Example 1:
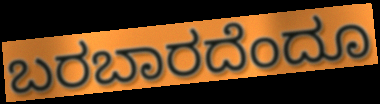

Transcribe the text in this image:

ಬರಬಾರದೆಂದೂ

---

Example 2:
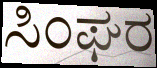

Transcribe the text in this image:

ಸಿಂಘರ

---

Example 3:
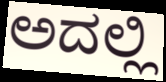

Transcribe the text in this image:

ಅದಲ್ಲಿ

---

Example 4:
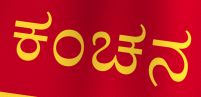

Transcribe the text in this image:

ಕಂಚನ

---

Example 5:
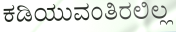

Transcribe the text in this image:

ಕಡಿಯುವಂತಿರಲಿಲ್ಲ